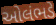
ઓલંભડે